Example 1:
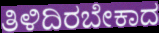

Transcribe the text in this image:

ತಿಳಿದಿರಬೇಕಾದ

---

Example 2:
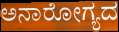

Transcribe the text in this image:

ಅನಾರೋಗ್ಯದ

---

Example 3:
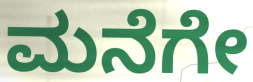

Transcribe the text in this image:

ಮನೆಗೇ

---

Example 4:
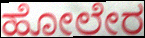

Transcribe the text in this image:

ಹೋಲೇರ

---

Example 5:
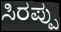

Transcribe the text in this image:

ಸಿರಪ್ಪು